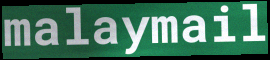
malaymail